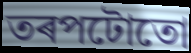
তৰপটোতো